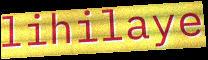
lihilaye